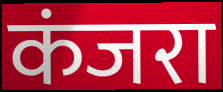
कंजरा